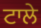
ਟਾਲੇ